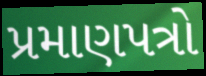
પ્રમાણપત્રો